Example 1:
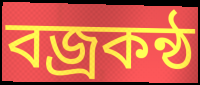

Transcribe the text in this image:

বজ্রকন্ঠ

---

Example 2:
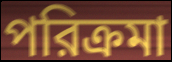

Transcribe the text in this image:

পরিক্রমা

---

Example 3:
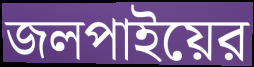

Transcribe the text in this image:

জলপাইয়ের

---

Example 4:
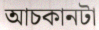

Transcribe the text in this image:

আচকানটা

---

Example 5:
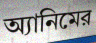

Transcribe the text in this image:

অ্যানিমের